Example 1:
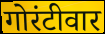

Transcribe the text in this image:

गोरंटीवार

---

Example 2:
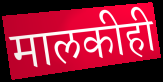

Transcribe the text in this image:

मालकीही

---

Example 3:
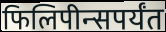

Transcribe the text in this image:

फिलिपीन्सपर्यंत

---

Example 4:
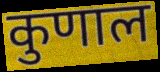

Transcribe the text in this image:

कुणाल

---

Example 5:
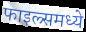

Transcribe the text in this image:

फाइल्समध्ये